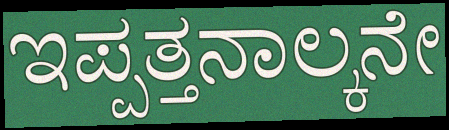
ಇಪ್ಪತ್ತನಾಲ್ಕನೇ